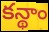
కన్థాం